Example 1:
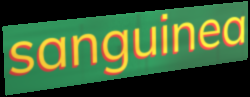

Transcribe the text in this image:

sanguinea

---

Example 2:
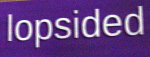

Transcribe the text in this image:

lopsided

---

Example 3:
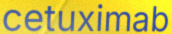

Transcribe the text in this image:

cetuximab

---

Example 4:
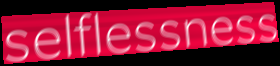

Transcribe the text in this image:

selflessness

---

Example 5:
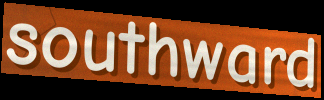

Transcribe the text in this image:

southward